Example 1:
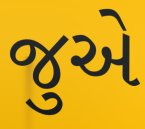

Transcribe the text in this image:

જુએ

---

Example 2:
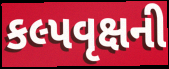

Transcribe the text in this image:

કલ્પવૃક્ષની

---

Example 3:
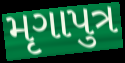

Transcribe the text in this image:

મૃગાપુત્ર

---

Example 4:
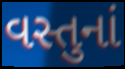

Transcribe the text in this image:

વસ્તુનાં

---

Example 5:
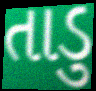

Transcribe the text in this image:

તાડુ